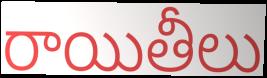
రాయితీలు